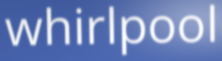
whirlpool